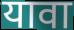
यावा